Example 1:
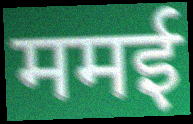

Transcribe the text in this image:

ममई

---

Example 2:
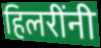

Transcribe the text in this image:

हिलरींनी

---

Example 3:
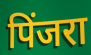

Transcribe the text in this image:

पिंजरा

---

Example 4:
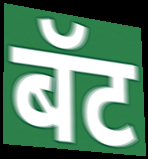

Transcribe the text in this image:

बॅट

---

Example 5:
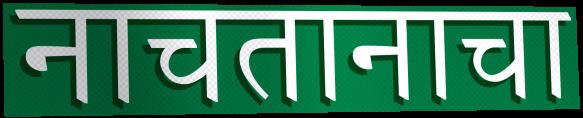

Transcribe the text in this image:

नाचतानाचा